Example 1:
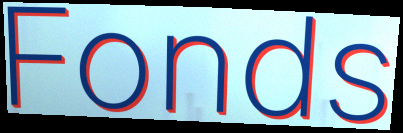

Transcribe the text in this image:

Fonds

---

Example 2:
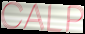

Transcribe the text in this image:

CALP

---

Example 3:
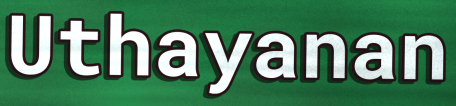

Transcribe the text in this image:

Uthayanan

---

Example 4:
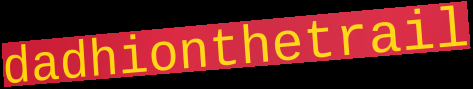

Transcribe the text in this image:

dadhionthetrail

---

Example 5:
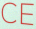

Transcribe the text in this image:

CE